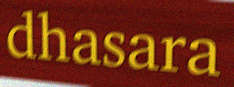
dhasara